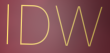
IDW